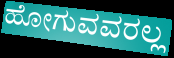
ಹೋಗುವವರಲ್ಲ